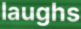
laughs